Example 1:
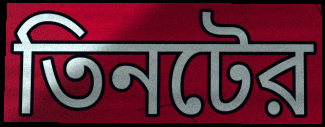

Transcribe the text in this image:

তিনটের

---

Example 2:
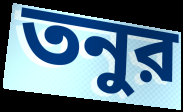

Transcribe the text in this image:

তনুর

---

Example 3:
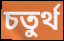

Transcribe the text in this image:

চতুর্থ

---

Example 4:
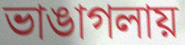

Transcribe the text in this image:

ভাঙাগলায়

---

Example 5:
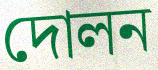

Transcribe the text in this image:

দোলন